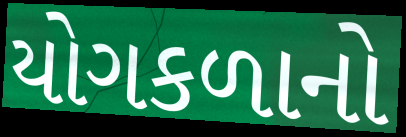
યોગકળાનો